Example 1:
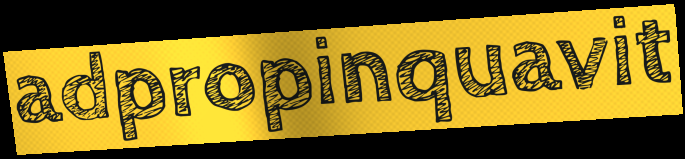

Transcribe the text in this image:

adpropinquavit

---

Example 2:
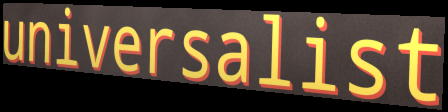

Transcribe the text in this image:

universalist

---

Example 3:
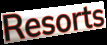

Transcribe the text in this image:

Resorts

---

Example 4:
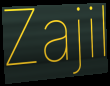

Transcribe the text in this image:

Zajil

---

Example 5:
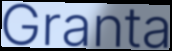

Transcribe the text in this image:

Granta